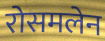
रोसमलेन